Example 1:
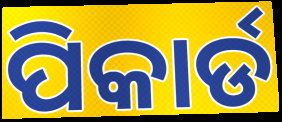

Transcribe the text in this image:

ପିକାର୍ଡ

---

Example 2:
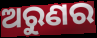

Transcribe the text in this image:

ଅରୁଣର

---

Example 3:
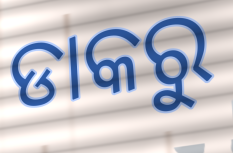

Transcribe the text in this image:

ଡାକରୁ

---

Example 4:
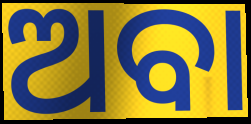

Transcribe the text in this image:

ଅବା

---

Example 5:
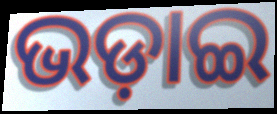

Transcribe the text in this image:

ଭଡ଼ାଇ